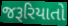
જરૂરિયાતો